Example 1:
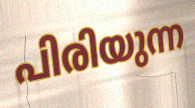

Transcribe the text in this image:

പിരിയുന്ന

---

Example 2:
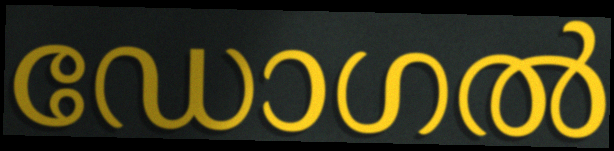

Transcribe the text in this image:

ഡോഗൽ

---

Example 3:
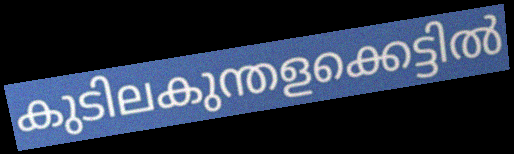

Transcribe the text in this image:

കുടിലകുന്തളക്കെട്ടിൽ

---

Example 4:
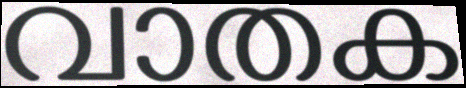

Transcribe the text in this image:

വാതക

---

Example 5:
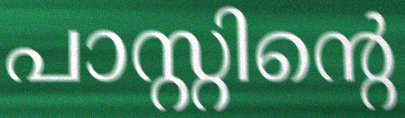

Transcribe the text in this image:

പാസ്റ്റിന്റെ